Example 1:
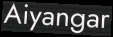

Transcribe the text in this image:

Aiyangar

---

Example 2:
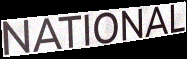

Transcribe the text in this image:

NATIONAL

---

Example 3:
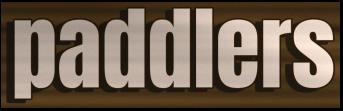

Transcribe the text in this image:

paddlers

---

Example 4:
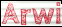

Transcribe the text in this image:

Arwi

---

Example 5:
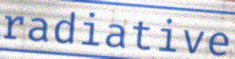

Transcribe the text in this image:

radiative